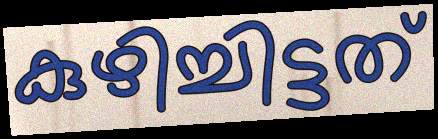
കുഴിച്ചിട്ടത്